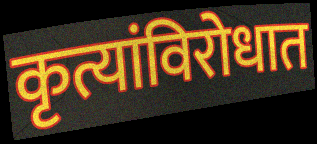
कृत्यांविरोधात